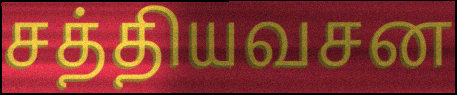
சத்தியவசன